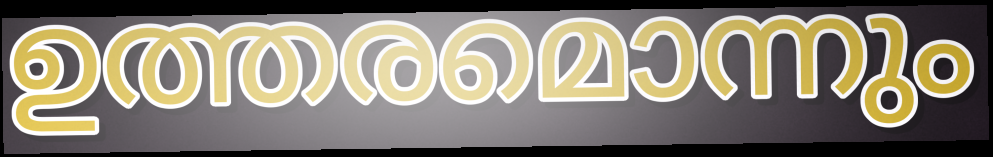
ഉത്തരമൊന്നും